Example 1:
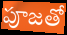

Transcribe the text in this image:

పూజతో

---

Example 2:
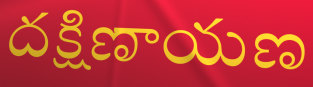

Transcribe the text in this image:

దక్షిణాయణ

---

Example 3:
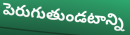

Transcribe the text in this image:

పెరుగుతుండటాన్ని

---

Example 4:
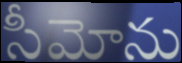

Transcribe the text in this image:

సీమోను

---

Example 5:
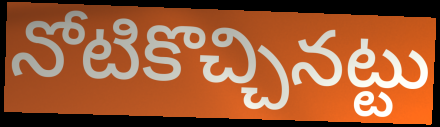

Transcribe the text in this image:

నోటికొచ్చినట్టు